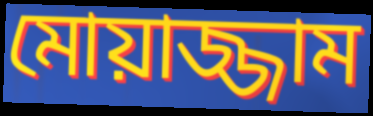
মোয়াজ্জাম